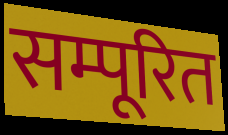
सम्पूरित